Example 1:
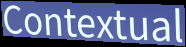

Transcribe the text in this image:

Contextual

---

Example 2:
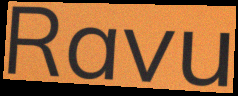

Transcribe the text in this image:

Ravu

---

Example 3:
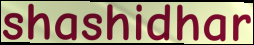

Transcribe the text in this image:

shashidhar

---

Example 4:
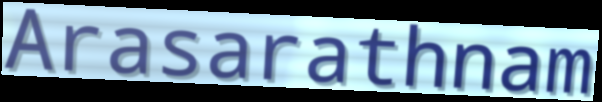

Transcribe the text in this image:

Arasarathnam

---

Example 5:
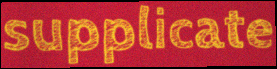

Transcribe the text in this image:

supplicate